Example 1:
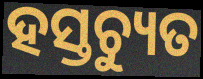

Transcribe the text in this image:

ହସ୍ତଚ୍ୟୁତ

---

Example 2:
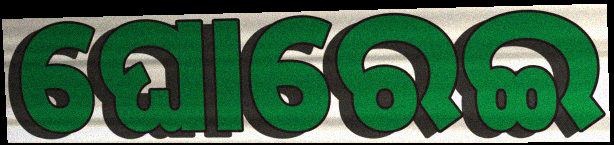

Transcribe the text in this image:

ଘୋରେଇ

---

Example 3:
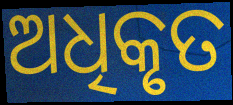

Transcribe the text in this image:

ଅଧିକୃତ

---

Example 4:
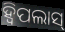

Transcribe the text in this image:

ହ୍ୱିପଲାସ୍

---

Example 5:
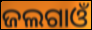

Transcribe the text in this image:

ଜଲଗାଓଁ